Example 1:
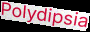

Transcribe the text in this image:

Polydipsia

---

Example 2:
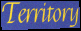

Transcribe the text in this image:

Territory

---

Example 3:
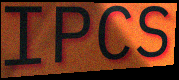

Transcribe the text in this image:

IPCS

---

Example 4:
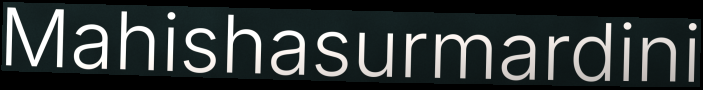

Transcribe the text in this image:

Mahishasurmardini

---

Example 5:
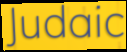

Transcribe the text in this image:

Judaic